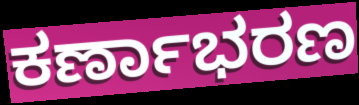
ಕರ್ಣಾಭರಣ